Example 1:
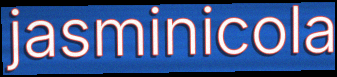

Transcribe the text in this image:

jasminicola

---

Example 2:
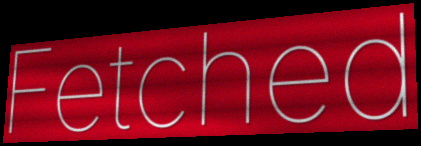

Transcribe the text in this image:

Fetched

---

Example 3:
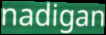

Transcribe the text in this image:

nadigan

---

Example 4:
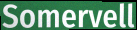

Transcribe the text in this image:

Somervell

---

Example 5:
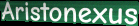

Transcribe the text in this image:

Aristonexus